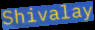
Shivalay